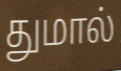
துமால்